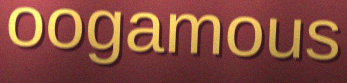
oogamous